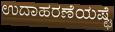
ಉದಾಹರಣೆಯಷ್ಟೆ